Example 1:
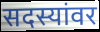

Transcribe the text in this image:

सदस्यांवर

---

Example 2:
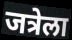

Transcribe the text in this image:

जत्रेला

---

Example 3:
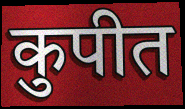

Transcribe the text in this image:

कुपीत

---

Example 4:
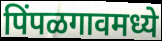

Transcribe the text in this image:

पिंपळगावमध्ये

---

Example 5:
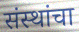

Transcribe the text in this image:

संस्थांचा